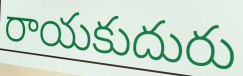
రాయకుదురు